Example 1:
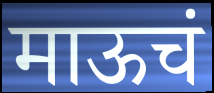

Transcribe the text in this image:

माऊचं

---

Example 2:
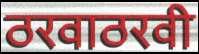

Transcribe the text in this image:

ठरवाठरवी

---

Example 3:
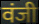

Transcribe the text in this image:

वंजी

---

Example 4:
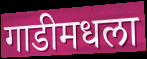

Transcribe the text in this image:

गाडीमधला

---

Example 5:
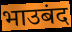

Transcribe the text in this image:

भाउबंद